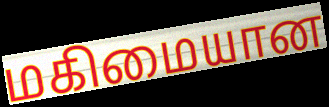
மகிமையான